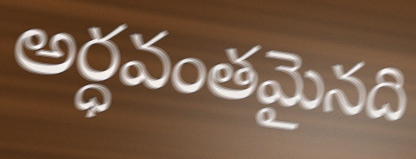
అర్ధవంతమైనది